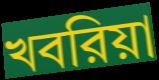
খবরিয়া